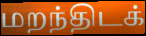
மறந்திடக்